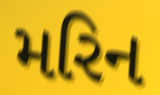
મરિન